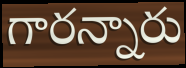
గారన్నారు